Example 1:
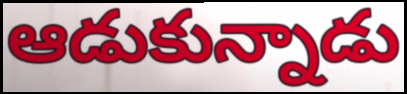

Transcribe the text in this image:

ఆడుకున్నాడు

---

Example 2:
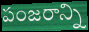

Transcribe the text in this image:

పంజరాన్ని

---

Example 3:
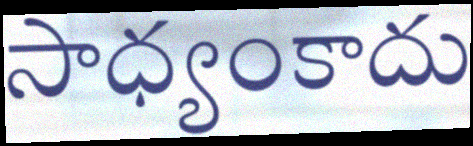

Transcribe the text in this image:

సాధ్యంకాదు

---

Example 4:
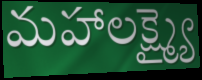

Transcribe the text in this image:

మహాలక్ష్మ్యై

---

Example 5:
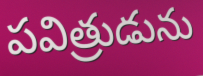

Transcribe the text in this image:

పవిత్రుడును